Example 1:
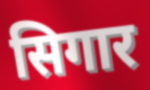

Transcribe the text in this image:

सिगार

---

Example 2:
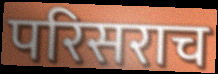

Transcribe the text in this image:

परिसराच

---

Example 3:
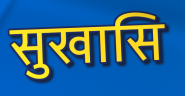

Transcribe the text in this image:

सुखासि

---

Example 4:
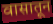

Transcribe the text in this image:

वासातून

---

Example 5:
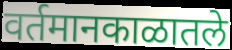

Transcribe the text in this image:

वर्तमानकाळातले